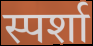
स्पर्शा